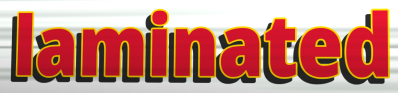
laminated